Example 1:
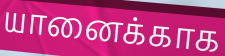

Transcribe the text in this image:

யானைக்காக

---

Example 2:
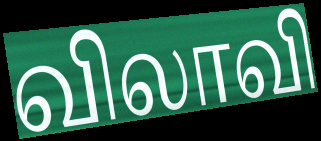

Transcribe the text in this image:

விலாவி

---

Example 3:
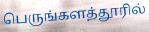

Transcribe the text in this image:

பெருங்களத்தூரில்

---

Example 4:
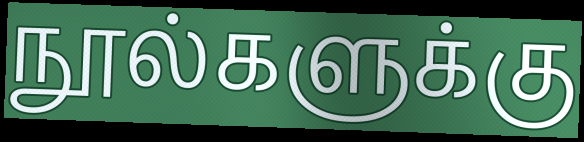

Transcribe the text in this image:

நூல்களுக்கு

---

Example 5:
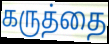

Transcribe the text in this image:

கருத்தை